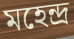
মহেন্দ্ৰ